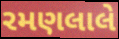
રમણલાલે